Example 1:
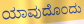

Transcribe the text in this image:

ಯಾವುದೊಂದು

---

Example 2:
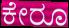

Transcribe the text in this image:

ಕೇರೂ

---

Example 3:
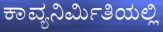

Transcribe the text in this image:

ಕಾವ್ಯನಿರ್ಮಿತಿಯಲ್ಲಿ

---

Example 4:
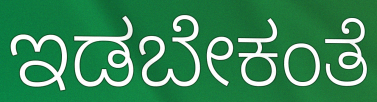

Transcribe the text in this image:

ಇಡಬೇಕಂತೆ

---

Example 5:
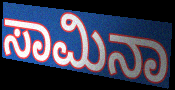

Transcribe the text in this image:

ಸಾಮಿನಾ